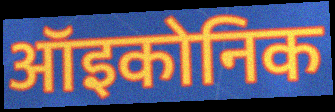
ऑइकोनिक